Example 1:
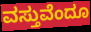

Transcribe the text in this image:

ವಸ್ತುವೆಂದೂ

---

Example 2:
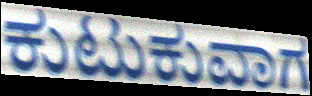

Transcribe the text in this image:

ಕುಟುಕುವಾಗ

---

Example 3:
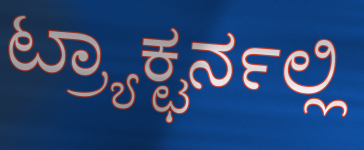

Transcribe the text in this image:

ಟ್ರ್ಯಾಕ್ಟರ್ನಲ್ಲಿ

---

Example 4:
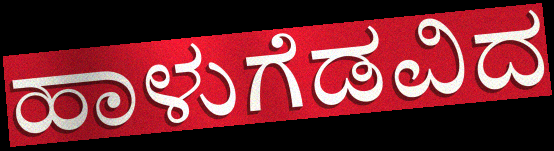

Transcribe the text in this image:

ಹಾಳುಗೆಡವಿದ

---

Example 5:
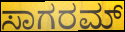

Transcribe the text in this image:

ಸಾಗರಮ್